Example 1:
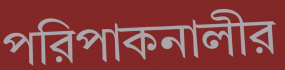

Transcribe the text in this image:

পরিপাকনালীর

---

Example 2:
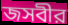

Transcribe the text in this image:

জসবীর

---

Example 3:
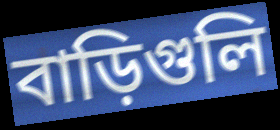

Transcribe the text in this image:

বাড়িগুলি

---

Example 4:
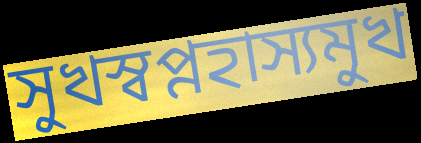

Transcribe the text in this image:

সুখস্বপ্নহাস্যমুখ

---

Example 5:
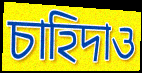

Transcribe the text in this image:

চাহিদাও